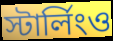
স্টার্লিংও